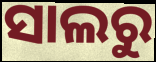
ସାଲରୁ